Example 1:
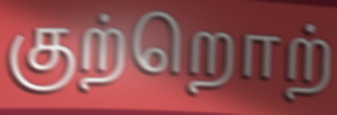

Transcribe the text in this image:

குற்றொற்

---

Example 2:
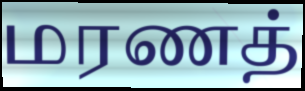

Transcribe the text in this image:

மரணத்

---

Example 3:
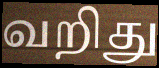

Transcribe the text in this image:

வறிது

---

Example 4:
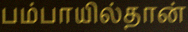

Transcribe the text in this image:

பம்பாயில்தான்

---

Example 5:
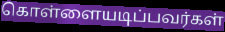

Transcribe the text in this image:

கொள்ளையடிப்பவர்கள்